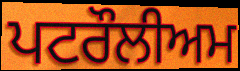
ਪਟਰੌਲੀਅਮ